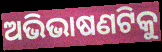
ଅଭିଭାଷଣଟିକୁ